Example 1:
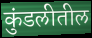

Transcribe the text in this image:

कुंडलीतील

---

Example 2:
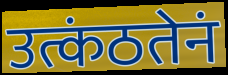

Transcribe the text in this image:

उत्कंठतेनं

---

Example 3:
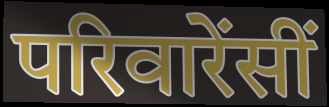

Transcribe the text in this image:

परिवारेंसीं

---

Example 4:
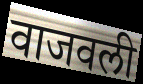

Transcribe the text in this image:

वाजवली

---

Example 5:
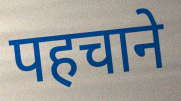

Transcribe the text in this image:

पहचाने